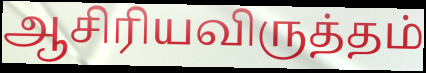
ஆசிரியவிருத்தம்